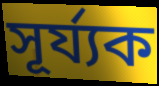
সূৰ্য্যক